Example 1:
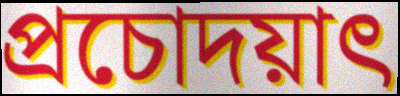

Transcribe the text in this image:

প্রচোদয়াৎ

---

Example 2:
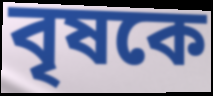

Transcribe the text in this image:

বৃষকে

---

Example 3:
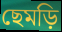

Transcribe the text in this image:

ছেমড়ি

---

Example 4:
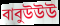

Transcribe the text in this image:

বাবুউউউ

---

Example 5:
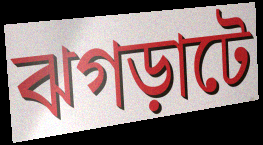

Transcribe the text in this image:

ঝগড়াটে